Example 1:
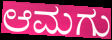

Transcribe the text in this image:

ಆಮಗು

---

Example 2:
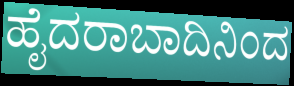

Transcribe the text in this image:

ಹೈದರಾಬಾದಿನಿಂದ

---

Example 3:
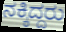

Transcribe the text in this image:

ನಕ್ಕಿದ್ದರು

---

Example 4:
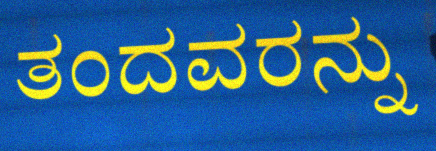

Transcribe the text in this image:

ತಂದವರನ್ನು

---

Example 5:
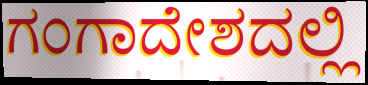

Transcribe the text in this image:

ಗಂಗಾದೇಶದಲ್ಲಿ